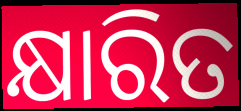
କ୍ଷାରିତ